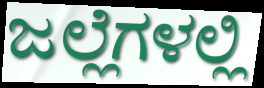
ಜಲ್ಲೆಗಳಲ್ಲಿ